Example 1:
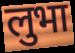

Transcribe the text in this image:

लुभा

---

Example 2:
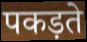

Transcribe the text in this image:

पकड़ते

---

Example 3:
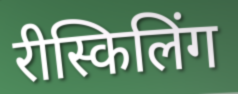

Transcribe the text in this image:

रीस्किलिंग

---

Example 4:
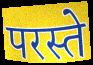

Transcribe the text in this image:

परस्ते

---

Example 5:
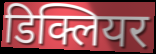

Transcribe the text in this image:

डिक्लियर